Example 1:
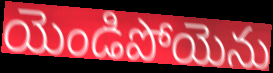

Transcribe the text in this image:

యెండిపోయెను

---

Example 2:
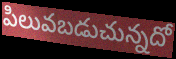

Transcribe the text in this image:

పిలువబడుచున్నదో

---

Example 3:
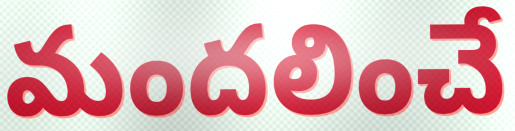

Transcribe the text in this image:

మందలించే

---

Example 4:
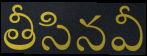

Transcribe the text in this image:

తీసినవీ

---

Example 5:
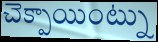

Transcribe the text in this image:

చెక్పాయింట్ను